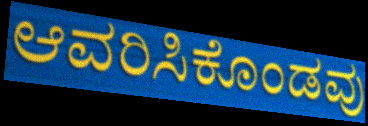
ಆವರಿಸಿಕೊಂಡವು